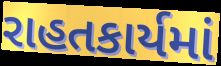
રાહતકાર્યમાં